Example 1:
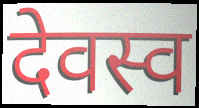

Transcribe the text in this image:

देवस्व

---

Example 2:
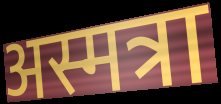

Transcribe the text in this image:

अस्मत्रा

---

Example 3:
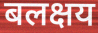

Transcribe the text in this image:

बलक्षय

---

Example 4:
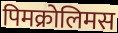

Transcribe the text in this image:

पिमक्रोलिमस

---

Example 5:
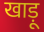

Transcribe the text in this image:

खाड़ू